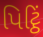
પિટ્ઠિં